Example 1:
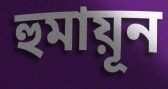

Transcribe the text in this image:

হুমায়ূন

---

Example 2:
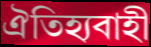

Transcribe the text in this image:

ঐতিহ্যবাহী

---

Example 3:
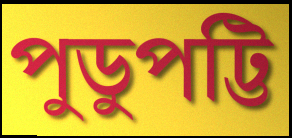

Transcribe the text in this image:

পুডুপট্টি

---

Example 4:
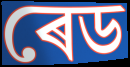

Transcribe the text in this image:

ৰেড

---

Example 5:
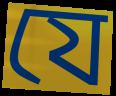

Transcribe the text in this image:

যে